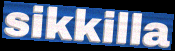
sikkilla